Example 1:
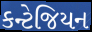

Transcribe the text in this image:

કન્ટેજિયન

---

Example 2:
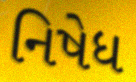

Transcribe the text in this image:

નિષેધ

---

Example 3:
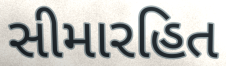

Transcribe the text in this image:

સીમારહિત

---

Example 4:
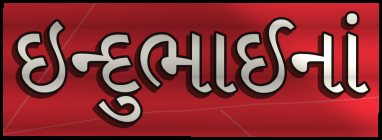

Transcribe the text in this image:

ઇન્દુભાઈનાં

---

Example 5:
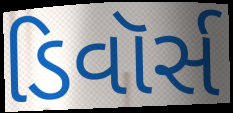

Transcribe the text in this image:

ડિવૉર્સ